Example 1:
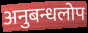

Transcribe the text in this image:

अनुबन्धलोप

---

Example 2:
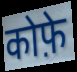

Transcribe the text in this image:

कोफ़े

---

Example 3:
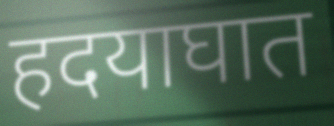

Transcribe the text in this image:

हदयाघात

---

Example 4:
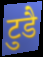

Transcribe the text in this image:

टुडै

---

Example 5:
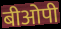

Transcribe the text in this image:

बीओपी